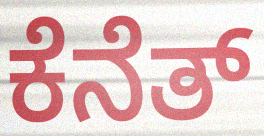
ಕೆನೆತ್